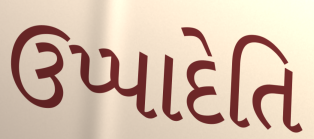
ઉપ્પાદેતિ